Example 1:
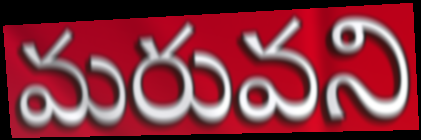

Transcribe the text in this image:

మరువని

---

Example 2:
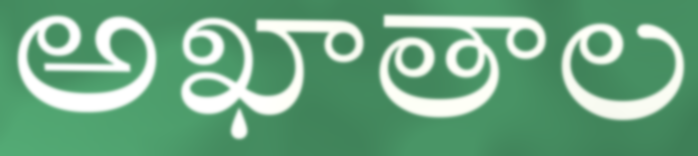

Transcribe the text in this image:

అఖాతాల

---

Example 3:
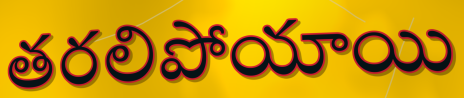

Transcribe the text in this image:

తరలిపోయాయి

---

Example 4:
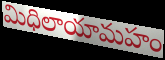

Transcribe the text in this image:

మిధిలాయామహం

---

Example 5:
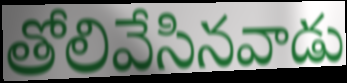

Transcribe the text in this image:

తోలివేసినవాడు